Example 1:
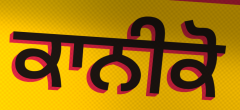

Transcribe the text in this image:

ਕਾਨੀਕੋ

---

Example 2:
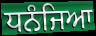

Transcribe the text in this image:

ਧਨੰਜਿਆ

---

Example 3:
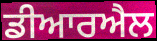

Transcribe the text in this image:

ਡੀਆਰਐਲ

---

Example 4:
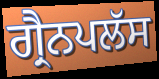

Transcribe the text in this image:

ਗ੍ਰੈਨਪਲੱਸ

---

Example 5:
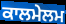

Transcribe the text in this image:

ਕਾਲਮੇਲਮ